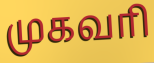
முகவரி